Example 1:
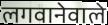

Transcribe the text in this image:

लगवानेवाले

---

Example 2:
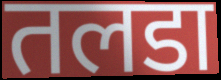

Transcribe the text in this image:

तलडा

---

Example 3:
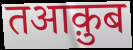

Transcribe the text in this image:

तआक़ुब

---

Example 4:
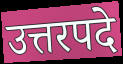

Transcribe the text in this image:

उत्तरपदे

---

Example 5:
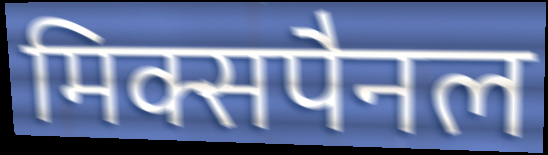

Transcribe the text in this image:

मिक्सपैनल